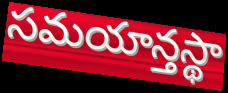
సమయాన్తస్థా